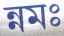
ন্নমঃ